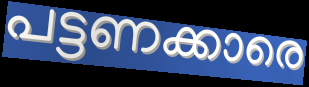
പട്ടണക്കാരെ